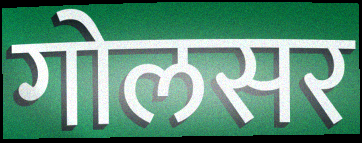
गोलसर